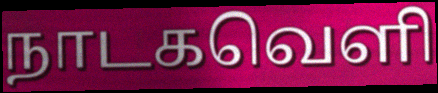
நாடகவெளி